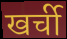
खर्ची